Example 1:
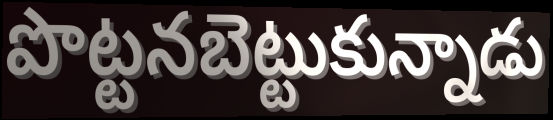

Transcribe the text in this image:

పొట్టనబెట్టుకున్నాడు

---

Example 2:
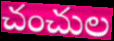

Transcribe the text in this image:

చంచుల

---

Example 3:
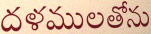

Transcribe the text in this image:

దళములతోను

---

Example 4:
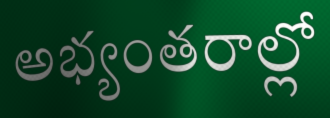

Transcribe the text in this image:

అభ్యంతరాల్లో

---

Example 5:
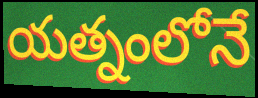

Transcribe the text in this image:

యత్నంలోనే